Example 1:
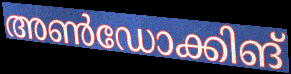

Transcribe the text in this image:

അൺഡോക്കിങ്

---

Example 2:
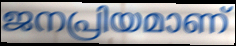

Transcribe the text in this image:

ജനപ്രിയമാണ്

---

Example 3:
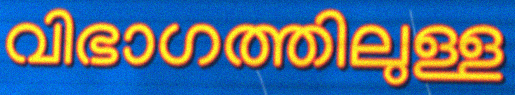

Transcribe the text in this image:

വിഭാഗത്തിലുള്ള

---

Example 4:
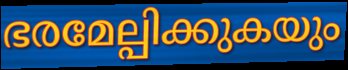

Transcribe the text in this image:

ഭരമേല്പിക്കുകയും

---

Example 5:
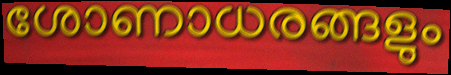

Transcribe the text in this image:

ശോണാധരങ്ങളും